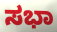
ಸಭಾ